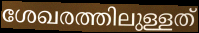
ശേഖരത്തിലുള്ളത്